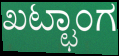
ಖಟ್ಟಾಂಗ